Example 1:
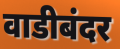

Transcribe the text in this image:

वाडीबंदर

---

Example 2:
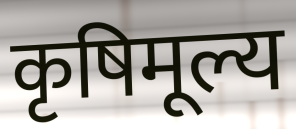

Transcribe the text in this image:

कृषिमूल्य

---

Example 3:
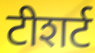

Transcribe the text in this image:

टीशर्ट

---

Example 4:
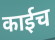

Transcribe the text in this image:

काईच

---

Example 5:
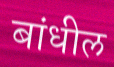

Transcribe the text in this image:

बांधील